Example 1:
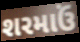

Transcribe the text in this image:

શરમાઉં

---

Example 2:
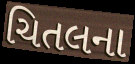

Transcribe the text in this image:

ચિતલના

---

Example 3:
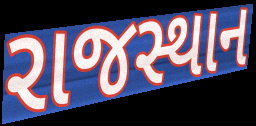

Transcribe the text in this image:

રાજસ્થાન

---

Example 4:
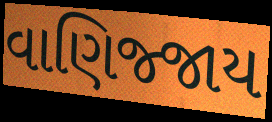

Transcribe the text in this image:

વાણિજ્જાય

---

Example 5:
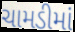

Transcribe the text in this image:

ચામડીમાં